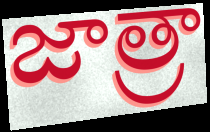
జాత్రా